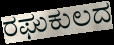
ರಘುಕುಲದ